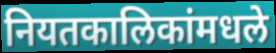
नियतकालिकांमधले